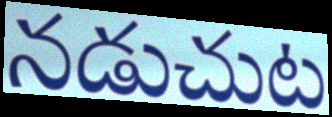
నడుచుట